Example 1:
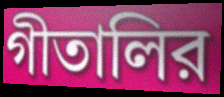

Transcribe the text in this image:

গীতালির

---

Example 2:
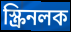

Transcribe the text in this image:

স্ক্রিনলক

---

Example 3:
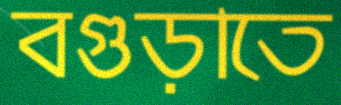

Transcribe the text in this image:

বগুড়াতে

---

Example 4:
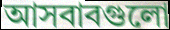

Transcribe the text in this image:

আসবাবগুলো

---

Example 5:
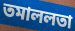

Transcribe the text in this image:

তমাললতা